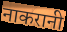
नाकरानी